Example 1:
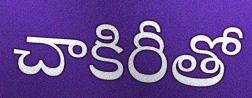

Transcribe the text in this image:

చాకిరీతో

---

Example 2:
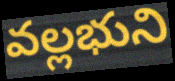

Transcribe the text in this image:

వల్లభుని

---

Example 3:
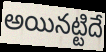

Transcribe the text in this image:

అయినట్టిదే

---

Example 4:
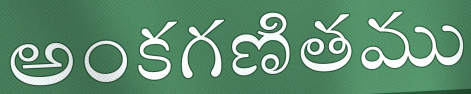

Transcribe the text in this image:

అంకగణితము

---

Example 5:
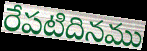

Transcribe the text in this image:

రేపటిదినము